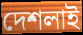
দেশলাই